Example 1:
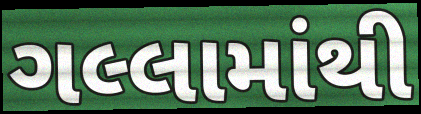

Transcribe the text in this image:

ગલ્લામાંથી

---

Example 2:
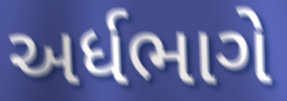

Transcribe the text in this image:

અર્ધભાગે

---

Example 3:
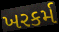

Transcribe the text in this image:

ખરકર્મ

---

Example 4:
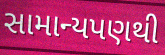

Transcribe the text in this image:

સામાન્યપણથી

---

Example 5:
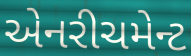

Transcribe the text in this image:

એનરીચમેન્ટ